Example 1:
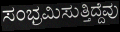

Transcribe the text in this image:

ಸಂಭ್ರಮಿಸುತ್ತಿದ್ದೆವು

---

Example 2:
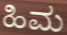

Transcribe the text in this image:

ಹಿಮ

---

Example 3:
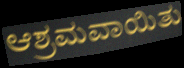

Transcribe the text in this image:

ಆಶ್ರಮವಾಯಿತು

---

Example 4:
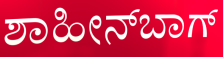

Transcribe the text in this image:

ಶಾಹೀನ್‌ಬಾಗ್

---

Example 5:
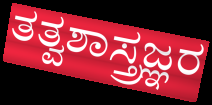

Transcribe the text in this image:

ತತ್ವಶಾಸ್ತ್ರಜ್ಞರ